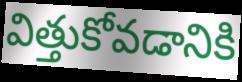
విత్తుకోవడానికి